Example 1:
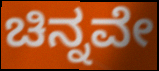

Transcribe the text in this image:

ಚಿನ್ನವೇ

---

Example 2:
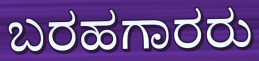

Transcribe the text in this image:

ಬರಹಗಾರರು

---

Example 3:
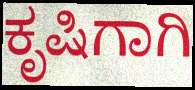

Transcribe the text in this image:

ಕೃಷಿಗಾಗಿ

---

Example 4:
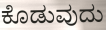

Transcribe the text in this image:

ಕೊಡುವುದು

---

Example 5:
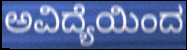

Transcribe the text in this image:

ಅವಿದ್ಯೆಯಿಂದ